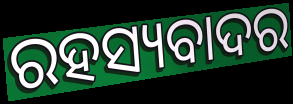
ରହସ୍ୟବାଦର